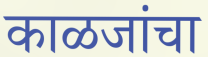
काळजांचा